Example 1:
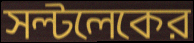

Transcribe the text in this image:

সল্টলেকের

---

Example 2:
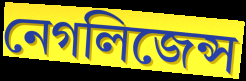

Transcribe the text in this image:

নেগলিজেন্স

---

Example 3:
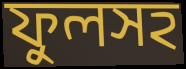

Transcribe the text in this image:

ফুলসহ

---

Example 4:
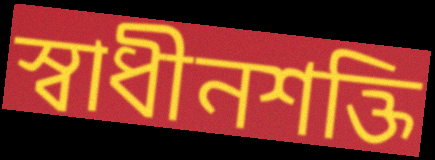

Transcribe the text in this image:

স্বাধীনশক্তি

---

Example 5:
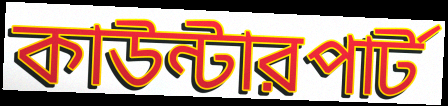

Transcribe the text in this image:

কাউন্টারপার্ট